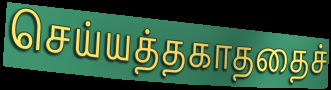
செய்யத்தகாததைச்